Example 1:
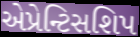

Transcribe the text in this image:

એપ્રેન્ટિસશિપ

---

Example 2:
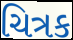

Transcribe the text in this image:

ચિત્રક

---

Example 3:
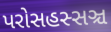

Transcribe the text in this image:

પરોસહસ્સઞ્ચ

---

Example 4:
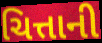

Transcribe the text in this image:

ચિત્તાની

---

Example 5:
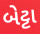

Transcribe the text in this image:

બેટ્ટા